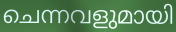
ചെന്നവളുമായി